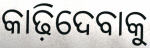
କାଢ଼ିଦେବାକୁ